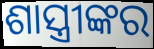
ଶାସ୍ତ୍ରୀଙ୍କର